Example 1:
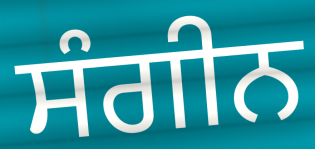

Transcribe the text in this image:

ਸੰਗੀਨ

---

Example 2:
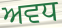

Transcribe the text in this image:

ਅਵਧ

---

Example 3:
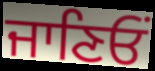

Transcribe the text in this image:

ਜਾਣਿਓਂ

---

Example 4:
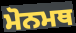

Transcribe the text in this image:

ਮੋਨਮਥ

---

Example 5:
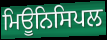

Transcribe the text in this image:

ਮਿਊਨਿਸਿਪਲ